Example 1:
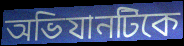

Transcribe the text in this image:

অভিযানটিকে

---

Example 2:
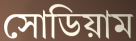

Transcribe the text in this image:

সোডিয়াম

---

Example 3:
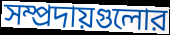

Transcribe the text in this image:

সম্প্রদায়গুলোর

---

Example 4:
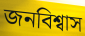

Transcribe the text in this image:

জনবিশ্বাস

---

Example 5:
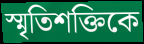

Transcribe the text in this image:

স্মৃতিশক্তিকে